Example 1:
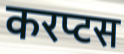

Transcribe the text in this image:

करप्टस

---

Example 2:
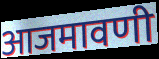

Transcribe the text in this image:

आजमावणी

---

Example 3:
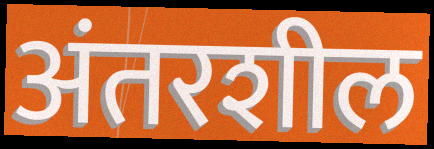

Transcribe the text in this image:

अंतरशील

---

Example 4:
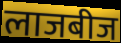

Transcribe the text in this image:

लाजबीज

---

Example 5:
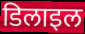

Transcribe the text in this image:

डिलाइल